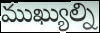
ముఖ్యుల్ని